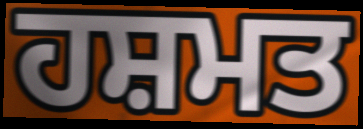
ਹਸ਼ਮਤ